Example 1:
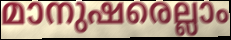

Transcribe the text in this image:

മാനുഷരെല്ലാം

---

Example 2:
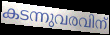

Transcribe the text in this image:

കടന്നുവരവിന്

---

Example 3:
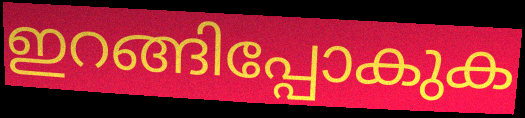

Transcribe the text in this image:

ഇറങ്ങിപ്പോകുക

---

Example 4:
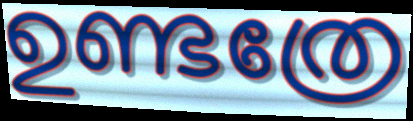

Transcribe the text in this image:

ഉണ്ടത്രേ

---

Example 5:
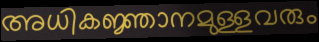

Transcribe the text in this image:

അധികജ്ഞാനമുള്ളവരും